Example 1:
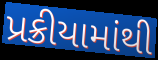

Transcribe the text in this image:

પ્રક્રીયામાંથી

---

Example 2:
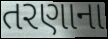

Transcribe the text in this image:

તરણાના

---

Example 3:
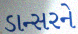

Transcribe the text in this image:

ડાન્સરને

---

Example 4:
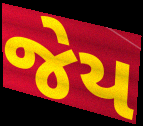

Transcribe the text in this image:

જેય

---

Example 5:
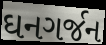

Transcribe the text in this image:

ઘનગર્જન